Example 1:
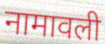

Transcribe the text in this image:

नामावली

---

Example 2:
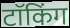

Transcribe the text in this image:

टॉकिंग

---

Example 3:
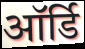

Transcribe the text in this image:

ऑर्डि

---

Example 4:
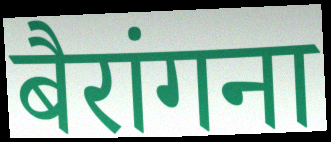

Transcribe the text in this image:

बैरांगना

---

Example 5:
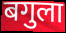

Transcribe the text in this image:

बगुला